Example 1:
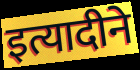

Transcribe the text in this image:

इत्यादीने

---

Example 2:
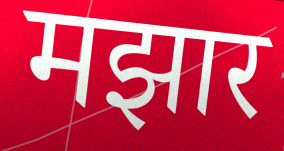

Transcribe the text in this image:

मझार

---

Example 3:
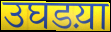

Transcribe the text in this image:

उघडय़ा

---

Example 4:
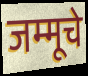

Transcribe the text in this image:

जम्मूचे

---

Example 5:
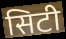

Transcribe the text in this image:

सिटी